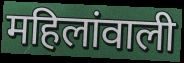
महिलांवाली